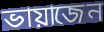
ভায়াজেন